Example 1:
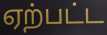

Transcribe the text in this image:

ஏற்பட்ட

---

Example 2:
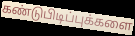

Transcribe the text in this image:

கண்டுபிடிப்புக்களை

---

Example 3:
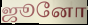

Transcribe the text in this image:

ஜூனோ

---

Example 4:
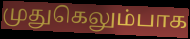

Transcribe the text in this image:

முதுகெலும்பாக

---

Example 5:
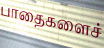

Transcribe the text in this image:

பாதைகளைச்